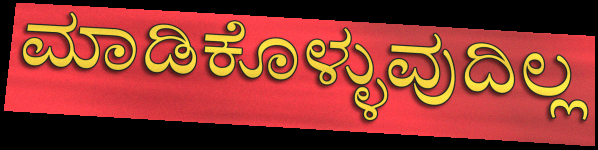
ಮಾಡಿಕೊಳ್ಳುವುದಿಲ್ಲ